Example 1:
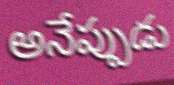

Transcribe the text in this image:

అనేప్పుడు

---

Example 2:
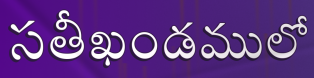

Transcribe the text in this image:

సతీఖండములో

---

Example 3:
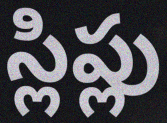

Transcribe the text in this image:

స్లిప్లు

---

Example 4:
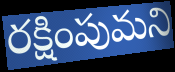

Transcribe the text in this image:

రక్షింపుమని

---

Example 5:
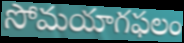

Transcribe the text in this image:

సోమయాగఫలం